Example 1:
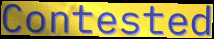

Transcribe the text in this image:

Contested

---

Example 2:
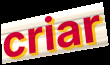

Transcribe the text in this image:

criar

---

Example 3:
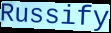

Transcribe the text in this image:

Russify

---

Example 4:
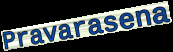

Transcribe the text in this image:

Pravarasena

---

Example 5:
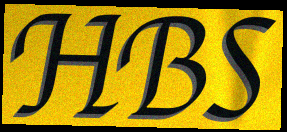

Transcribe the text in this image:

HBS